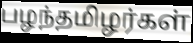
பழந்தமிழர்கள்